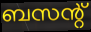
ബസന്റ്